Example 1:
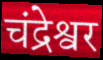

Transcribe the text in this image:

चंद्रेश्वर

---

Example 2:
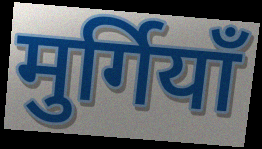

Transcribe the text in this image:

मुर्गियाँ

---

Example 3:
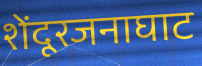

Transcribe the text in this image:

शेंदूरजनाघाट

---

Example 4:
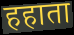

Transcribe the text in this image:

हहाता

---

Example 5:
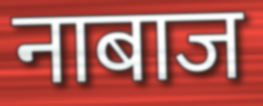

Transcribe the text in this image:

नाबाज